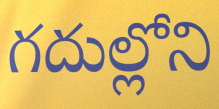
గదుల్లోని